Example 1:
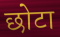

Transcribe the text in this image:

छोटा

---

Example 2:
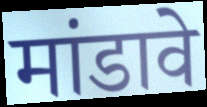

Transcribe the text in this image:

मांडावे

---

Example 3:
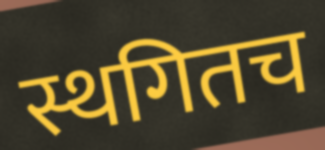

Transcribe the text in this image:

स्थगितच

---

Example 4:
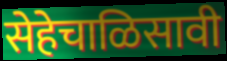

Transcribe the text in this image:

सेहेचाळिसावी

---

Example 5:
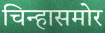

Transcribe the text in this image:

चिन्हासमोर